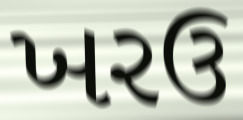
ખરઉ